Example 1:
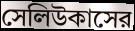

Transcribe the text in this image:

সেলিউকাসের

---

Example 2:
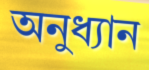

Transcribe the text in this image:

অনুধ্যান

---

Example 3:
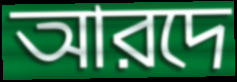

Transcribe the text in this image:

আরদে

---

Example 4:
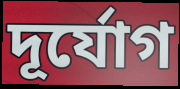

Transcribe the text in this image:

দূর্যোগ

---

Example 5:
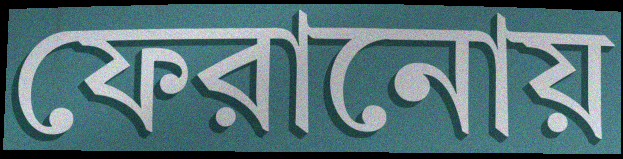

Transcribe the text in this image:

ফেরানোয়